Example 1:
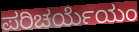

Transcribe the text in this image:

ಪರಿಚರ್ಯೆಯಂ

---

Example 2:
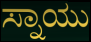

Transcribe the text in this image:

ಸ್ನಾಯು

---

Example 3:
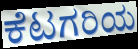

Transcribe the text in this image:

ಕೆಟಗರಿಯ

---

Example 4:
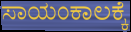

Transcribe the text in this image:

ಸಾಯಂಕಾಲಕ್ಕೆ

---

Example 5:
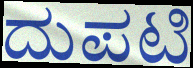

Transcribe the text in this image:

ದುಪಟಿ